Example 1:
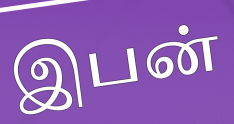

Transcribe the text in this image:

இபன்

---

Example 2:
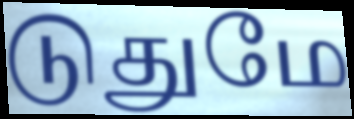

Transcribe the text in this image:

டுதுமே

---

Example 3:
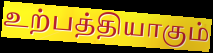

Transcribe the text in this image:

உற்பத்தியாகும்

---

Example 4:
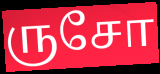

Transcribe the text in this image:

ருசோ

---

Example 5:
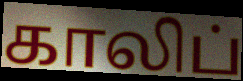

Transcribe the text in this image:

காலிப்